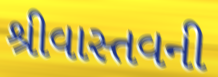
શ્રીવાસ્તવની